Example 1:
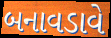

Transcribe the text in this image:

બનાવડાવે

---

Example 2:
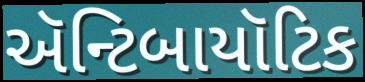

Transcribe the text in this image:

ઍન્ટિબાયૉટિક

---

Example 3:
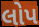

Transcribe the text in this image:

લોપ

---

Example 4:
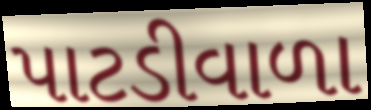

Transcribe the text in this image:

પાટડીવાળા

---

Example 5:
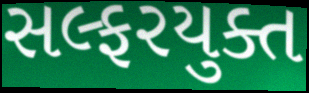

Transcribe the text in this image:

સલ્ફરયુક્ત